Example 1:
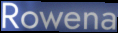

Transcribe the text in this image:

Rowena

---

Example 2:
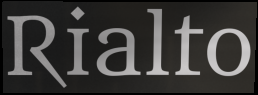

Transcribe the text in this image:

Rialto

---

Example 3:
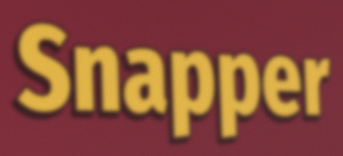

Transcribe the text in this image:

Snapper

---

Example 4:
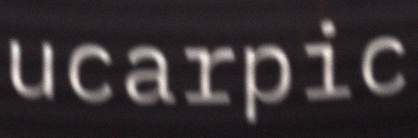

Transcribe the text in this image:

ucarpic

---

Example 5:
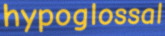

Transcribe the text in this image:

hypoglossal